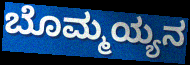
ಬೊಮ್ಮಯ್ಯನ